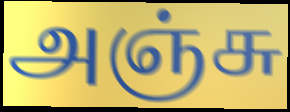
அஞ்சு